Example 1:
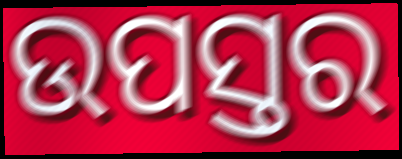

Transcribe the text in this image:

ଉପସ୍ତର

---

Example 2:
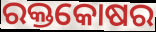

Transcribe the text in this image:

ରକ୍ତକୋଷର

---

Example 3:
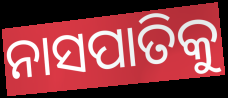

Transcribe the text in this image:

ନାସପାତିକୁ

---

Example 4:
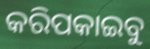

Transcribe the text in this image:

କରିପକାଇବୁ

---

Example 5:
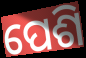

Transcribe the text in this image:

ପେଶି